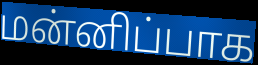
மன்னிப்பாக